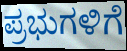
ಪ್ರಭುಗಳಿಗೆ